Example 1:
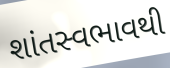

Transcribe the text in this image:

શાંતસ્વભાવથી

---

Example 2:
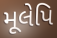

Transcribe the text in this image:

મૂલેપિ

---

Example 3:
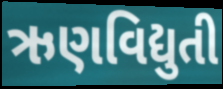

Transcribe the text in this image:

ઋણવિદ્યુતી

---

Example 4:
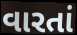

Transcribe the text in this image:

વારતાં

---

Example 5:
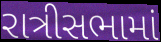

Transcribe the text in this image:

રાત્રીસભામાં